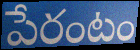
పేరంటం